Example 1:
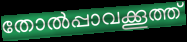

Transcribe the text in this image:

തോൽപ്പാവക്കൂത്ത്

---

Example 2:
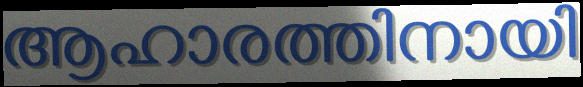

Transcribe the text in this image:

ആഹാരത്തിനായി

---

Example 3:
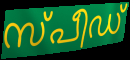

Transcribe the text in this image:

സ്പീഡ്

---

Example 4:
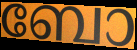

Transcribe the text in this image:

ബോ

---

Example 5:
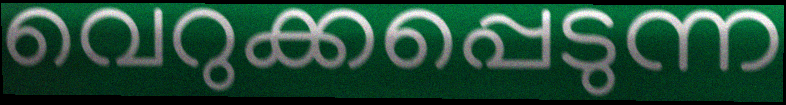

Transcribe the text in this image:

വെറുക്കപ്പെടുന്ന